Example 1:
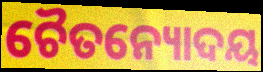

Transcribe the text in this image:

ଚୈତନ୍ୟୋଦୟ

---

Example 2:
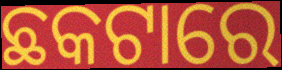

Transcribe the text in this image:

ଛକଟାରେ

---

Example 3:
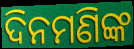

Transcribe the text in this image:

ଦିନମଣିଙ୍କ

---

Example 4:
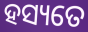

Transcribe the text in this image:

ହସ୍ୟତେ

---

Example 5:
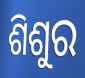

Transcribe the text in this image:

ଶିଶୁର